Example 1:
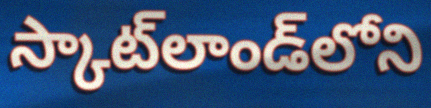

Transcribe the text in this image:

స్కాట్‌లాండ్‌లోని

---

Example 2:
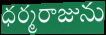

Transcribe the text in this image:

ధర్మరాజును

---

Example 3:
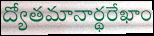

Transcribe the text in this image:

ద్యోతమానార్థరేఖాం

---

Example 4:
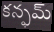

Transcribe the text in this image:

కన్ఫమ్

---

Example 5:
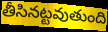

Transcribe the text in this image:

తీసినట్టవుతుంది